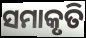
ସମାକୃତି